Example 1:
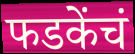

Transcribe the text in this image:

फडकेंचं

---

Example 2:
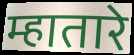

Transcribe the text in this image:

म्हातारे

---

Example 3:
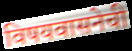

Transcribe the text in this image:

विषयवासनेची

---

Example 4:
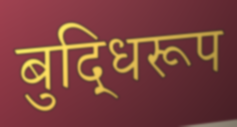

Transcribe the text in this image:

बुद्धिरूप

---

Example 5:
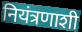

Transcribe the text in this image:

नियंत्रणाशी